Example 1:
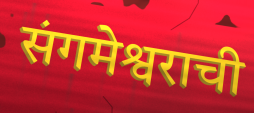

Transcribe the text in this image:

संगमेश्वराची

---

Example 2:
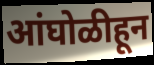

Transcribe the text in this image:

आंघोळीहून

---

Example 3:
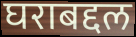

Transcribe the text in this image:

घराबद्दल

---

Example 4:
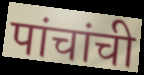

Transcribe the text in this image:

पांचांची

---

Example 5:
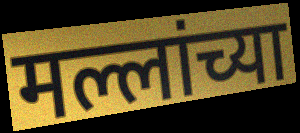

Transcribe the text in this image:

मल्लांच्या